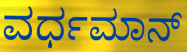
ವರ್ಧಮಾನ್